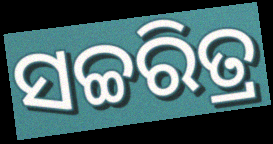
ସଚ୍ଚରିତ୍ର